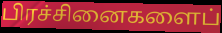
பிரச்சினைகளைப்